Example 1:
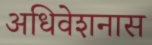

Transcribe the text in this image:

अधिवेशनास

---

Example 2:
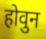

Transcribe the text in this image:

होवुन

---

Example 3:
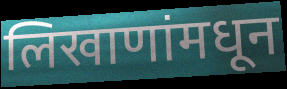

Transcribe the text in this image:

लिखाणांमधून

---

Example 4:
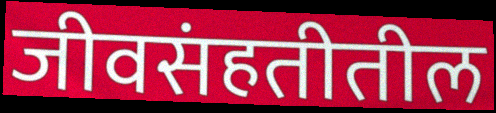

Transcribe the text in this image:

जीवसंहतीतील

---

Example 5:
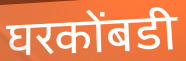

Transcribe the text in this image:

घरकोंबडी